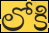
లోకి